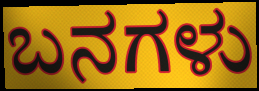
ಬನಗಳು